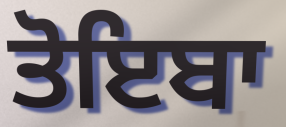
ਤੋਇਬਾ